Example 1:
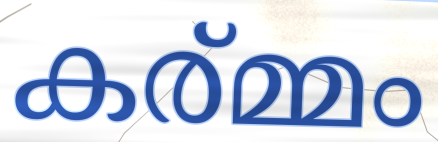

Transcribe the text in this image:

കര്മ്മം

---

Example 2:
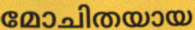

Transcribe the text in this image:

മോചിതയായ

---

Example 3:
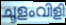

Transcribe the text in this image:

ചൂളംവിളി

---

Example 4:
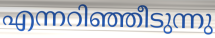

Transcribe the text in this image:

എന്നറിഞ്ഞീടുന്നു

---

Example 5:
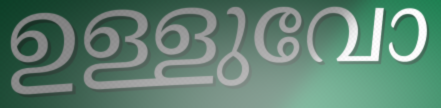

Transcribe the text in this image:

ഉള്ളുവോ